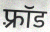
फ़्रॉड